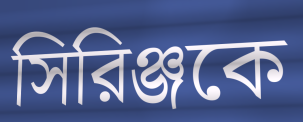
সিরিঞ্জকে